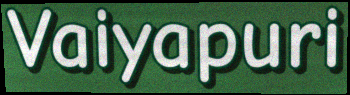
Vaiyapuri